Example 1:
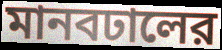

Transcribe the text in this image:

মানবঢালের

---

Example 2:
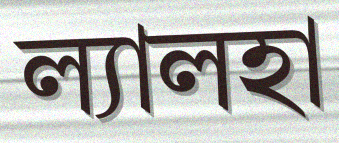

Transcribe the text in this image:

ল্যালহা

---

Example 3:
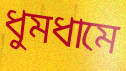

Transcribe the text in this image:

ধুমধামে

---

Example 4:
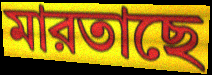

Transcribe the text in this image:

মারতাছে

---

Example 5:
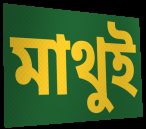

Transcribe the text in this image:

মাথুই